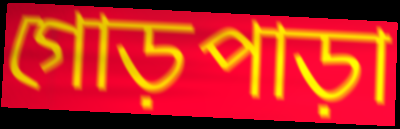
গোড়পাড়া